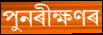
পুনৰীক্ষণৰ